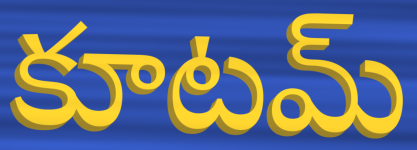
కూటమ్